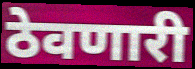
ठेवणारी